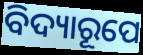
ବିଦ୍ୟାରୂପେ